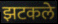
झटकले